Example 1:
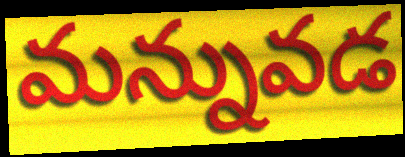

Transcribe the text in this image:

మన్నువడ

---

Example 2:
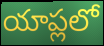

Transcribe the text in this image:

యాప్లలో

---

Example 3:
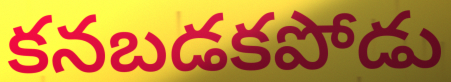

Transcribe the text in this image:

కనబడకపోడు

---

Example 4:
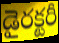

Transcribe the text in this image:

డైరక్టరీ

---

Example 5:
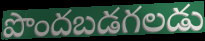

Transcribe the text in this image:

పొందబడగలడు